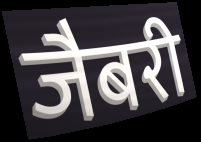
जैबरी